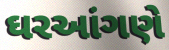
ઘરઆંગણે